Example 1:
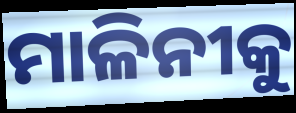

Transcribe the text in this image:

ମାଳିନୀକୁ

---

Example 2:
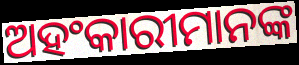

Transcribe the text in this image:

ଅହଂକାରୀମାନଙ୍କ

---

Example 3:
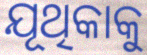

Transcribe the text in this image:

ଯୂଥିକାକୁ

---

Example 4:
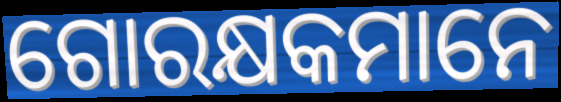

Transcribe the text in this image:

ଗୋରକ୍ଷକମାନେ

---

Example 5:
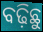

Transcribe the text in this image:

ବଢ଼ିଛୁ